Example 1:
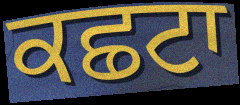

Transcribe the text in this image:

ਕਛਟਾ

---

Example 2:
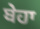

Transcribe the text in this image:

ਬੇਹਾ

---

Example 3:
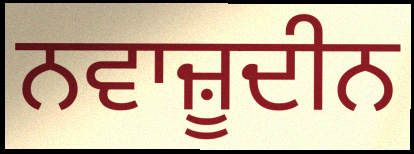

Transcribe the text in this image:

ਨਵਾਜ਼ੂਦੀਨ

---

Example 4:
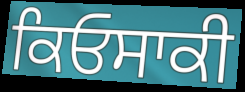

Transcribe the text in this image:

ਕਿਓਸਾਕੀ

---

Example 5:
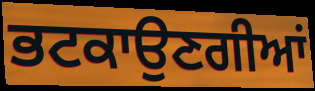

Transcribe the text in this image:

ਭਟਕਾਉਣਗੀਆਂ